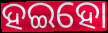
ହଇହୋ